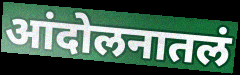
आंदोलनातलं